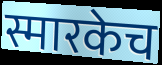
स्मारकेच